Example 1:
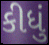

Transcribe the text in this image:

કીધું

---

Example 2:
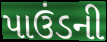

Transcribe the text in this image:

પાઉંડની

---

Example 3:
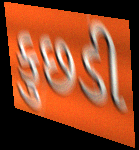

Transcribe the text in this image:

કુછડી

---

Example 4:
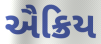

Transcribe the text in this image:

ઐક્રિય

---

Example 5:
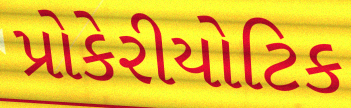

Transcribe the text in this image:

પ્રોકેરીયોટિક